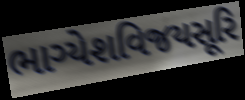
ભાગ્યેશવિજયસૂરિ